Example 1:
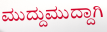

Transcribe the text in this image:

ಮುದ್ದುಮುದ್ದಾಗಿ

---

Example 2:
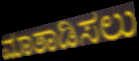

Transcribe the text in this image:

ಮಾತಾಡಿಸಲು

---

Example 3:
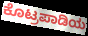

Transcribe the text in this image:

ಕೊಟ್ರಪಾಡಿಯ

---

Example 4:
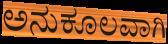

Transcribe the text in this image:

ಅನುಕೂಲವಾಗಿ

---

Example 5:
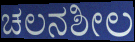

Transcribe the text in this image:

ಚಲನಶೀಲ